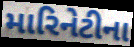
મારિનેટીના